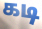
கடி